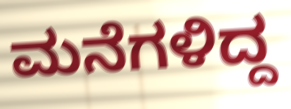
ಮನೆಗಳಿದ್ದ